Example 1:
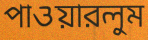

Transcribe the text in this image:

পাওয়ারলুম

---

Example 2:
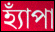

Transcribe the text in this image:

হ্যাঁপা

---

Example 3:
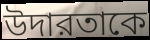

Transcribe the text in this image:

উদারতাকে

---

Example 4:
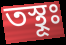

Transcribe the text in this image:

তস্থূঃ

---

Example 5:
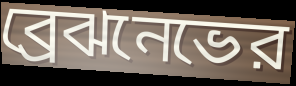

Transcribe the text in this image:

ব্রেঝনেভের